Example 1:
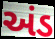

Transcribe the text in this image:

અંડ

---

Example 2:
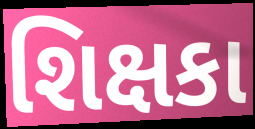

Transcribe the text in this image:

શિક્ષકા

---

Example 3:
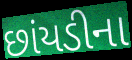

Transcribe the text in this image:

છાંયડીના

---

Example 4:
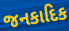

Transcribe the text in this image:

જનકાદિક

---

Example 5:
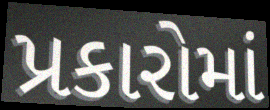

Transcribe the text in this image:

પ્રકારોમાં